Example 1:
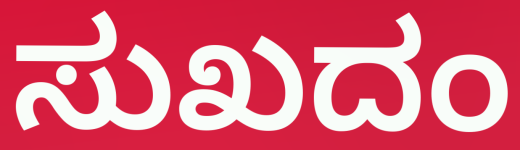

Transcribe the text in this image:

ಸುಖದಂ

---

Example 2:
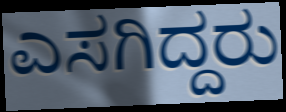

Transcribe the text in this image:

ಎಸಗಿದ್ದರು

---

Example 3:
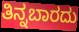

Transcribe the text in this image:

ತಿನ್ನಬಾರದು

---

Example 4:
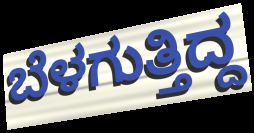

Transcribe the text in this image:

ಬೆಳಗುತ್ತಿದ್ದ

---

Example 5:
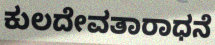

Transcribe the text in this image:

ಕುಲದೇವತಾರಾಧನೆ